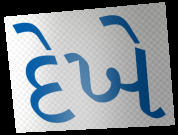
દેખે